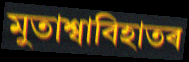
মুতাশ্বাবিহাতৰ